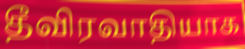
தீவிரவாதியாக